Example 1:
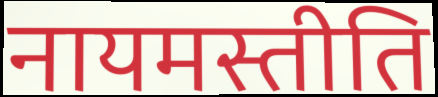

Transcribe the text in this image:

नायमस्तीति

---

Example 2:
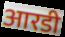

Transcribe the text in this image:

आरडी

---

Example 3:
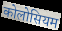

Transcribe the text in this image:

कोलोसियम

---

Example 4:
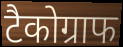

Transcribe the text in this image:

टैकोग्राफ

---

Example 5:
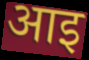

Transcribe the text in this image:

आइ